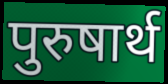
पुरुषार्थ